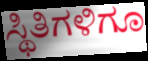
ಸ್ಥಿತಿಗಳಿಗೂ